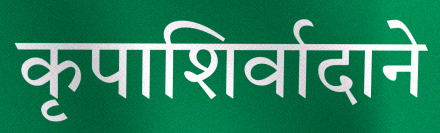
कृपाशिर्वादाने